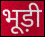
भूड़ी